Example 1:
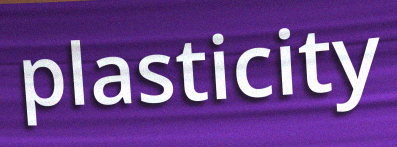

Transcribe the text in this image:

plasticity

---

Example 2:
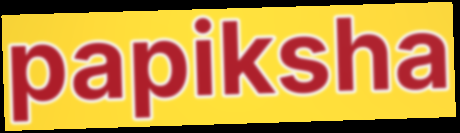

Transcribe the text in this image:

papiksha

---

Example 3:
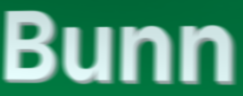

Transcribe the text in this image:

Bunn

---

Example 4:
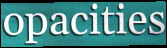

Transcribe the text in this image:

opacities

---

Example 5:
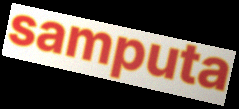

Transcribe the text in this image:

samputa